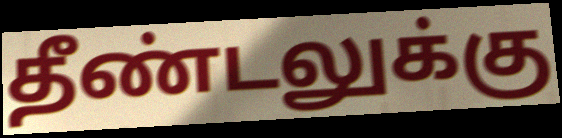
தீண்டலுக்கு